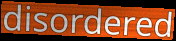
disordered